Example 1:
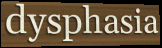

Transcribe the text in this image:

dysphasia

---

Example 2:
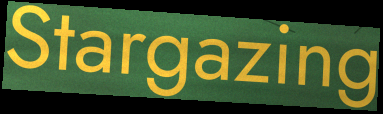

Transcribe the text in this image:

Stargazing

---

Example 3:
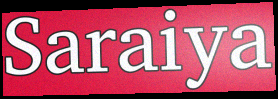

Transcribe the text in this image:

Saraiya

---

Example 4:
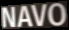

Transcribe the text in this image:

NAVO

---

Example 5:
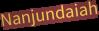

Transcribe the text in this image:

Nanjundaiah